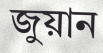
জুয়ান